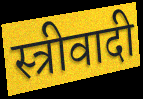
स्त्रीवादी